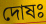
দোষঃ